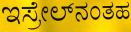
ಇಸ್ರೇಲ್‌ನಂತಹ